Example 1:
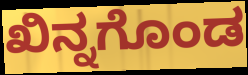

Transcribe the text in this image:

ಖಿನ್ನಗೊಂಡ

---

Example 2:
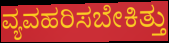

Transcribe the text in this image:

ವ್ಯವಹರಿಸಬೇಕಿತ್ತು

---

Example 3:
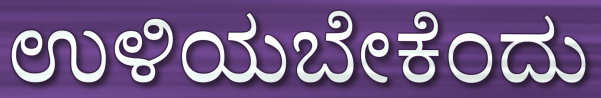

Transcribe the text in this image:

ಉಳಿಯಬೇಕೆಂದು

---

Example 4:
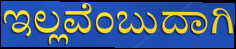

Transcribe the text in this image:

ಇಲ್ಲವೆಂಬುದಾಗಿ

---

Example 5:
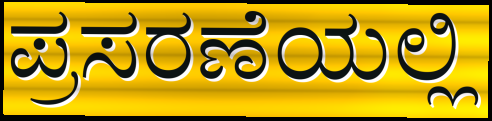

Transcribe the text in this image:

ಪ್ರಸರಣೆಯಲ್ಲಿ